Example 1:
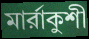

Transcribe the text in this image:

মার্রাকুশী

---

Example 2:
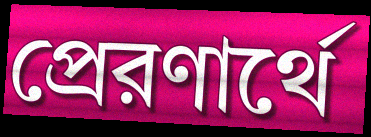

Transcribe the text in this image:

প্রেরণার্থে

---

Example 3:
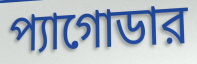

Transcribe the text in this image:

প্যাগোডার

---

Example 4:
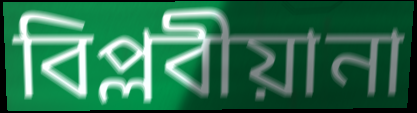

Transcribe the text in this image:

বিপ্লবীয়ানা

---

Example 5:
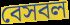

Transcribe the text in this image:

বেসবল